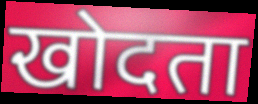
खोदता